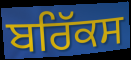
ਬਰਿੱਕਸ